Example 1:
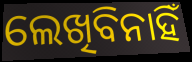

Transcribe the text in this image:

ଲେଖିବିନାହିଁ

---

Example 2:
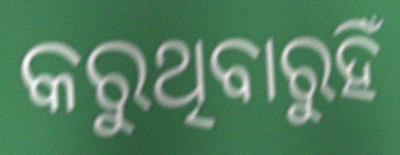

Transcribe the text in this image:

କରୁଥିବାରୁହିଁ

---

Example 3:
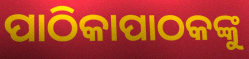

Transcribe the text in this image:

ପାଠିକାପାଠକଙ୍କୁ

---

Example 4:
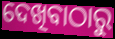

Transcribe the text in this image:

ଦେଖିବାଠାରୁ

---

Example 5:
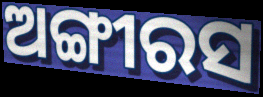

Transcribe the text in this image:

ଅଙ୍ଗୀରସ